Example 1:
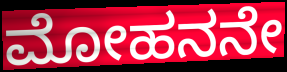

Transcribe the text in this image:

ಮೋಹನನೇ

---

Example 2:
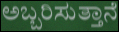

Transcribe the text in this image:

ಅಬ್ಬರಿಸುತ್ತಾನೆ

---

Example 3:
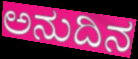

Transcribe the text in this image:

ಅನುದಿನ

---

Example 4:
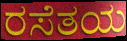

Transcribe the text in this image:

ರಸೆತಯ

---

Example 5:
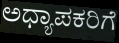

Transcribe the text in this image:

ಅಧ್ಯಾಪಕರಿಗೆ